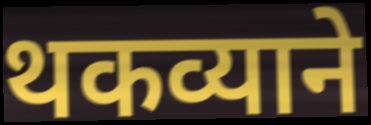
थकव्याने